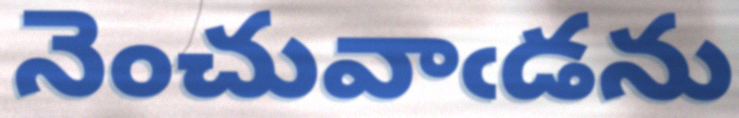
నెంచువాఁడను